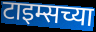
टाइम्सच्या